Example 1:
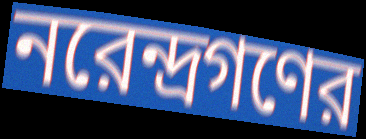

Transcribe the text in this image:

নরেন্দ্রগণের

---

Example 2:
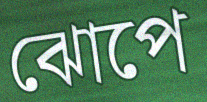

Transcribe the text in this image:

ঝোপে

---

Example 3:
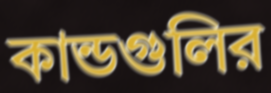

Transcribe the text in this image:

কান্ডগুলির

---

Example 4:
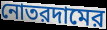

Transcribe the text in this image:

নোতরদামের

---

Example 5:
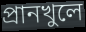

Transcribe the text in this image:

প্রানখুলে